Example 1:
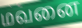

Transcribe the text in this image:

மவனை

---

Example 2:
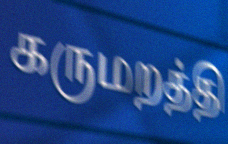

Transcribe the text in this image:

கருமறத்தி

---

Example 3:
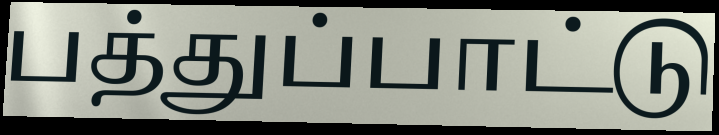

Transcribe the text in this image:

பத்துப்பாட்டு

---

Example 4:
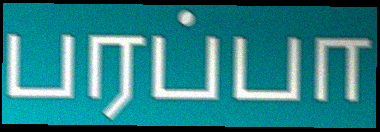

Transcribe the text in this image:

பரப்பா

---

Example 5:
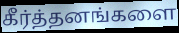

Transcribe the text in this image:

கீர்த்தனங்களை